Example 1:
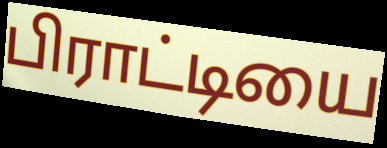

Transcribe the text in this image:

பிராட்டியை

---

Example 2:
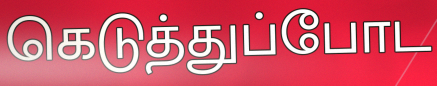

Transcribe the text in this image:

கெடுத்துப்போட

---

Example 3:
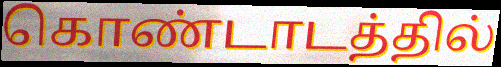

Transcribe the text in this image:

கொண்டாடத்தில்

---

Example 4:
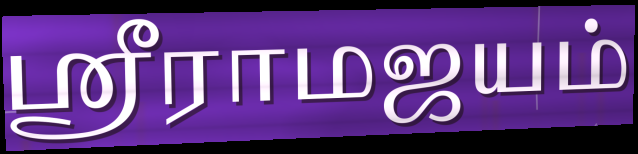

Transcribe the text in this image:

ஸ்ரீராமஜயம்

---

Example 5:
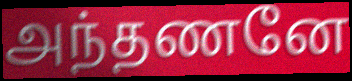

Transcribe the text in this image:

அந்தணனே